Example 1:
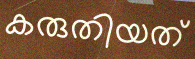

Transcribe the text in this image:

കരുതിയത്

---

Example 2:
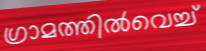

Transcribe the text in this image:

ഗ്രാമത്തിൽവെച്ച്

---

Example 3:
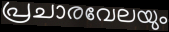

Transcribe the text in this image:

പ്രചാരവേലയും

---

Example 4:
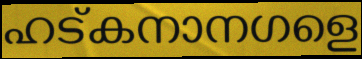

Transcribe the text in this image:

ഹട്കനാനഗളെ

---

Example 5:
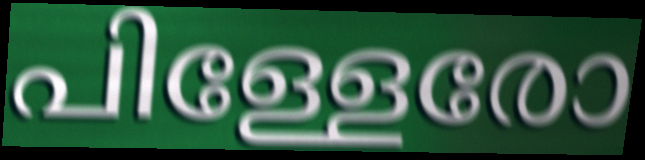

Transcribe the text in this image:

പിള്ളേരോ